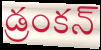
డ్రంకన్